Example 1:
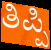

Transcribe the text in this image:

ತಿಪ್ಪಿ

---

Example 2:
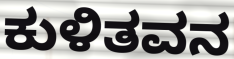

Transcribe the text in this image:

ಕುಳಿತವನ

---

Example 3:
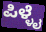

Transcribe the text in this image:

ಪಿಳ್ಳೈ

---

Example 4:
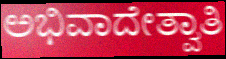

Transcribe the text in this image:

ಅಭಿವಾದೇತ್ವಾತಿ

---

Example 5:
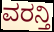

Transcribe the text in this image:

ವರನ್ತಿ